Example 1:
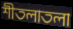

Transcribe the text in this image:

শীতলাতলা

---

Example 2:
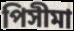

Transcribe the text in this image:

পিসীমা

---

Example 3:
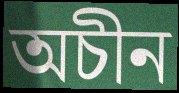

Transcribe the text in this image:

অচীন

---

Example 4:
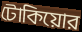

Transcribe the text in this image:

টোকিয়োর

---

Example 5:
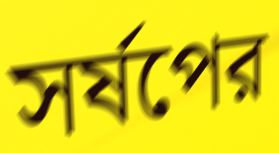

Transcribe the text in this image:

সর্ষপের